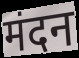
मंदन